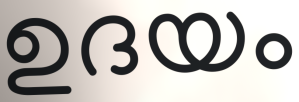
ഉദയം